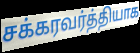
சக்கரவர்த்தியாக